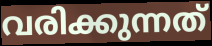
വരിക്കുന്നത്